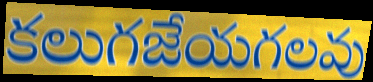
కలుగజేయగలవు